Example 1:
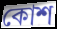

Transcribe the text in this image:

কোশ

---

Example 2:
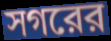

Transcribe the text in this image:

সগরের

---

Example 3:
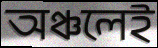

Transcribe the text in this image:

অঞ্চলেই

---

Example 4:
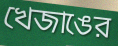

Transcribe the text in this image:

খেজাঙের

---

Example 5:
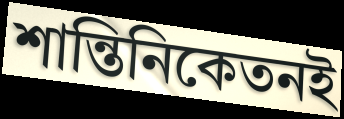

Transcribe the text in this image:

শান্তিনিকেতনই